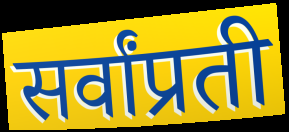
सर्वांप्रती